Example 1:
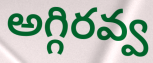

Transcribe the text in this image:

అగ్గిరవ్వ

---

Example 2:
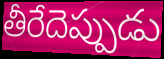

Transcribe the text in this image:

తీరేదెప్పుడు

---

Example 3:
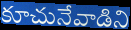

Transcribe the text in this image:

కూచునేవాడిని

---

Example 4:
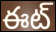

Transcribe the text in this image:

ఈట్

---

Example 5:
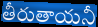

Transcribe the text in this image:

తీరుతాయనీ